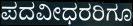
ಪದವೀಧರರಿಗೂ